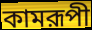
কামরূপী